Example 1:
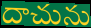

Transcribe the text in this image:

దాచును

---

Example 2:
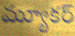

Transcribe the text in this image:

మ్యూకర్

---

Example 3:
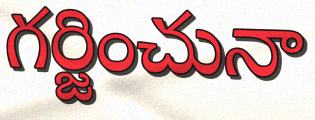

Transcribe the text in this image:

గర్జించునా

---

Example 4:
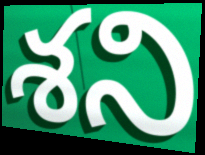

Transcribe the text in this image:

శని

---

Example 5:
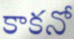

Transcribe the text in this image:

కాకనో